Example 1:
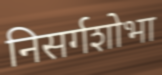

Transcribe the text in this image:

निसर्गशोभा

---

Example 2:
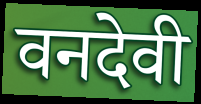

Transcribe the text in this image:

वनदेवी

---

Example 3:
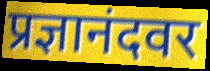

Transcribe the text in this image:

प्रज्ञानंदवर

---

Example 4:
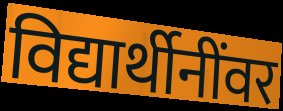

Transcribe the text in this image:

विद्यार्थीनींवर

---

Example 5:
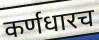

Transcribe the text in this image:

कर्णधारच